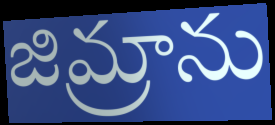
జిమ్రాను